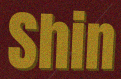
Shin